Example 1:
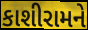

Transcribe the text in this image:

કાશીરામને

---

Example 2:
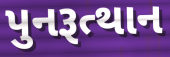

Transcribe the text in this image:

પુનરૂત્થાન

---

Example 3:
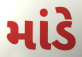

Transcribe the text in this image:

માંડે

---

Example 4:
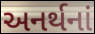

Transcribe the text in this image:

અનર્થનાં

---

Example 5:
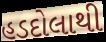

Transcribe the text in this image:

હડદોલાથી